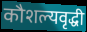
कौशल्यवृद्धी